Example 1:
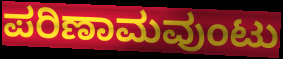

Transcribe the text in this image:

ಪರಿಣಾಮವುಂಟು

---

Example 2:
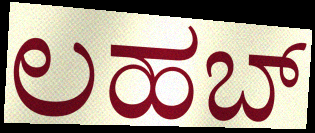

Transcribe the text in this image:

ಲಹಬ್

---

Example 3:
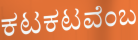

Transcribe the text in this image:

ಕಟಕಟವೆಂಬ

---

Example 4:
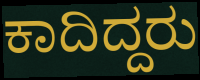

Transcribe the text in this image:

ಕಾದಿದ್ದರು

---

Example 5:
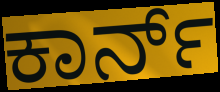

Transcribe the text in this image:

ಕಾರ್ನ್